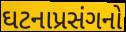
ઘટનાપ્રસંગનો